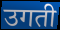
उगती